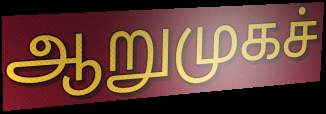
ஆறுமுகச்